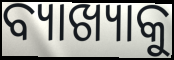
ବ୍ୟାଖ୍ୟାକୁ